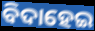
ବିଦାହେଇ